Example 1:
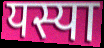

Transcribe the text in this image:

यस्या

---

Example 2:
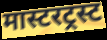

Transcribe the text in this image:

मास्टरट्रस्ट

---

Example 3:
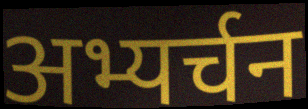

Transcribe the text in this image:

अभ्यर्चन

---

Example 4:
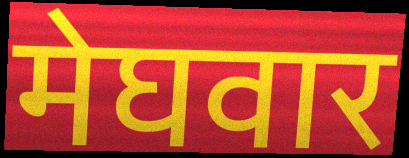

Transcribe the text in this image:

मेघवार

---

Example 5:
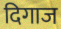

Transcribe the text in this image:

दिगाज